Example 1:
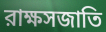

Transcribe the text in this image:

রাক্ষসজাতি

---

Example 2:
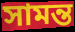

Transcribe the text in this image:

সামন্ত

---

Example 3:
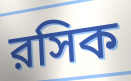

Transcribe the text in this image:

রসিক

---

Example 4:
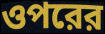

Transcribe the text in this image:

ওপরের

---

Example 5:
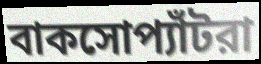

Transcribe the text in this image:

বাকসোপ্যাঁটরা